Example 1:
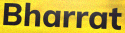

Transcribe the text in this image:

Bharrat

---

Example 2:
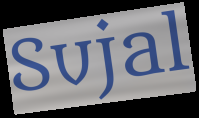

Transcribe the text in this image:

Sujal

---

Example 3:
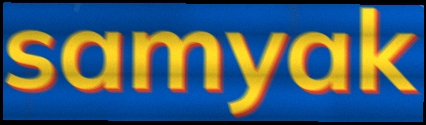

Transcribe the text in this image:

samyak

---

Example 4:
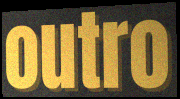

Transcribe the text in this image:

outro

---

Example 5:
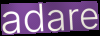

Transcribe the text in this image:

adare